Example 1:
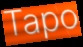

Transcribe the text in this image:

Tapo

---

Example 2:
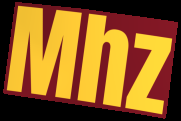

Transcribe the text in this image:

Mhz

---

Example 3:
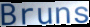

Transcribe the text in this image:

Bruns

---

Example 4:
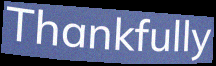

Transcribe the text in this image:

Thankfully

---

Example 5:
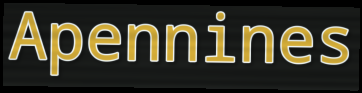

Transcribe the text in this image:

Apennines